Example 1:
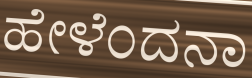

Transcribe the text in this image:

ಹೇಳೆಂದನಾ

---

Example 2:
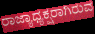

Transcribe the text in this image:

ರಾಜ್ಯಾಧ್ಯಕ್ಷರಾಗಿರುವ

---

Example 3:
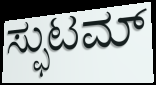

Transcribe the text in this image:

ಸ್ಫುಟಮ್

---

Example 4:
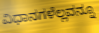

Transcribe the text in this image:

ವಿಧಾನಗಳೆಲ್ಲವನ್ನೂ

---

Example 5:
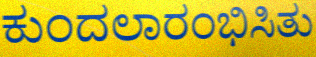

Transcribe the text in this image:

ಕುಂದಲಾರಂಭಿಸಿತು